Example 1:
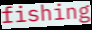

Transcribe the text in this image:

fishing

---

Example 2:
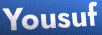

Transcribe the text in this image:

Yousuf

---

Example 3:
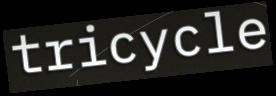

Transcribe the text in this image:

tricycle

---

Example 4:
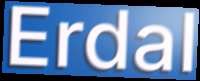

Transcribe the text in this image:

Erdal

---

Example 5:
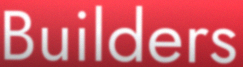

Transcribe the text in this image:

Builders